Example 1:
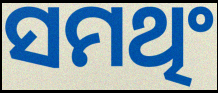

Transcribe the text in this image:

ସମଥିଂ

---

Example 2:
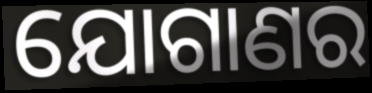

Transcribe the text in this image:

ଯୋଗାଣର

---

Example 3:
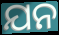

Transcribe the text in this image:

ଯନ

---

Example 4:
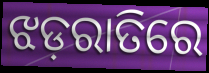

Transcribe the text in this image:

ଝଡ଼ରାତିରେ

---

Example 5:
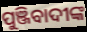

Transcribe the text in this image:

ପୁଞ୍ଜିବାଦୀଙ୍କ